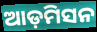
ଆଡ଼ମିସନ